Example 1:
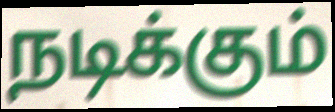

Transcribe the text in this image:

நடிக்கும்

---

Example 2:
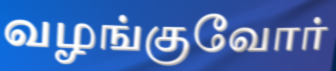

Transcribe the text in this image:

வழங்குவோர்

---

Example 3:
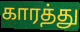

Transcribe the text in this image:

காரத்து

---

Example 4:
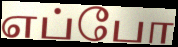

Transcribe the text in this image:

எப்போ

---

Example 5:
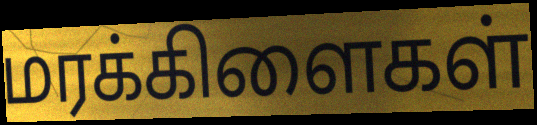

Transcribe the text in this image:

மரக்கிளைகள்